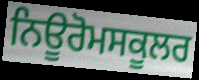
ਨਿਊਰੋਮਸਕੂਲਰ